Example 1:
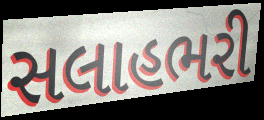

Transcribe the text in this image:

સલાહભરી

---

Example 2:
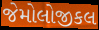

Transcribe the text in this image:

જેમોલોજીકલ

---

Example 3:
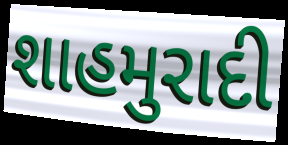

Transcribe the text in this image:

શાહમુરાદી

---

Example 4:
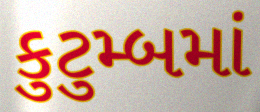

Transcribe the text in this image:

કુટુમ્બમાં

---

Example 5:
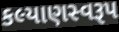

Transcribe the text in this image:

કલ્યાણસ્વરૂપ